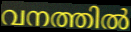
വനത്തിൽ